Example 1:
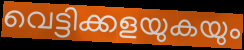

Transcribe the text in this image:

വെട്ടിക്കളയുകയും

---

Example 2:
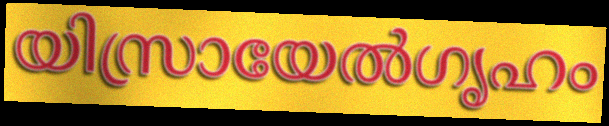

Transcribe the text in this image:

യിസ്രായേൽഗൃഹം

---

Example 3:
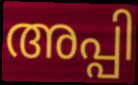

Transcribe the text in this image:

അപ്പി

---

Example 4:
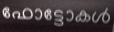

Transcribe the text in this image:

ഫോട്ടോകൾ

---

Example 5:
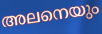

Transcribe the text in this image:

അലനെയും